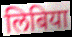
लिबिया